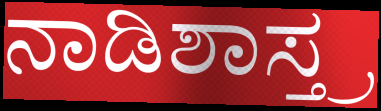
ನಾಡಿಶಾಸ್ತ್ರ